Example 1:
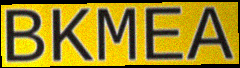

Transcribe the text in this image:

BKMEA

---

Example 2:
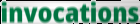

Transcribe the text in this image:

invocations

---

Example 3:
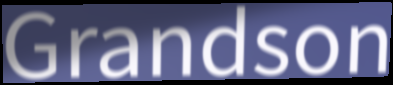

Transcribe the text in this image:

Grandson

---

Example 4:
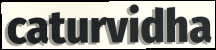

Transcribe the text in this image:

caturvidha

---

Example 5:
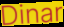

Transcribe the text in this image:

Dinar